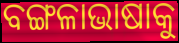
ବଙ୍ଗଳାଭାଷାକୁ